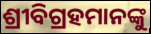
ଶ୍ରୀବିଗ୍ରହମାନଙ୍କୁ